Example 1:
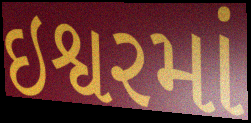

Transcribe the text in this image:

ઇશ્વરમાં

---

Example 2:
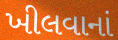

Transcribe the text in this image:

ખીલવાનાં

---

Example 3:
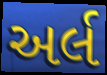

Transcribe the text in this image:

અર્લ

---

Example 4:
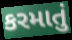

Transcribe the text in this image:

કરમાતું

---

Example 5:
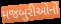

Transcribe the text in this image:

મજબુરીઓનો